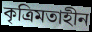
কৃত্রিমতাহীন